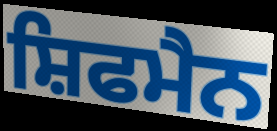
ਸ਼ਿਫਮੈਨ